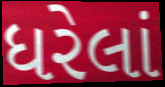
ધરેલાં